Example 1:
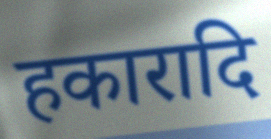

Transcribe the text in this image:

हकारादि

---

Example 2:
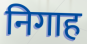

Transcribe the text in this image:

निगाह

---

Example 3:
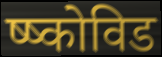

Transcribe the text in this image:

ष्ष्कोविड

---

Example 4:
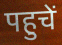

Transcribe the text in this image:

पहुचें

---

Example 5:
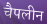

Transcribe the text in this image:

चैपलीन